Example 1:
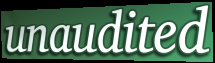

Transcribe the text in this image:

unaudited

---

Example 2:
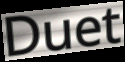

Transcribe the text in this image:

Duet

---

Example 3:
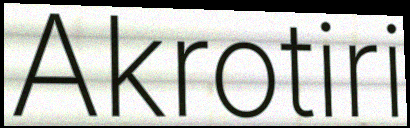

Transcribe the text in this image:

Akrotiri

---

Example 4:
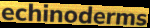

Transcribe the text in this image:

echinoderms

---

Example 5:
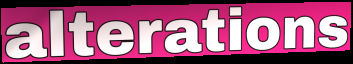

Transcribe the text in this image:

alterations